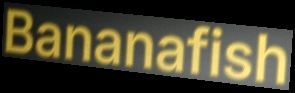
Bananafish